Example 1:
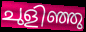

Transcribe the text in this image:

ചുളിഞ്ഞു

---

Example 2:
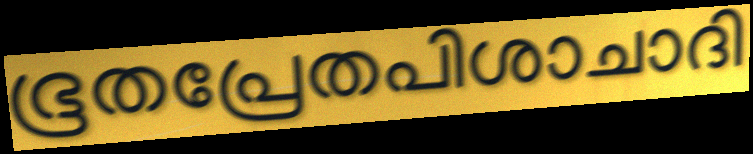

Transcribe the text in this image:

ഭൂതപ്രേതപിശാചാദി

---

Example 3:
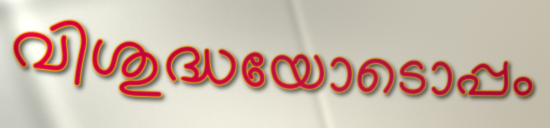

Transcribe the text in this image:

വിശുദ്ധയോടൊപ്പം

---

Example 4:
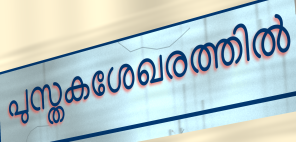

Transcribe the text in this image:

പുസ്തകശേഖരത്തിൽ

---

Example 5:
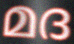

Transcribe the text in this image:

മദ